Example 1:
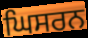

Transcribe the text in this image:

ਘਿਸਰਨ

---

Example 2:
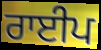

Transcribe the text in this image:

ਰਾਈਪ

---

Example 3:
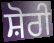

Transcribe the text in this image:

ਸ਼ੋਰੀ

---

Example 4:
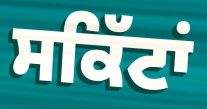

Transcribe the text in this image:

ਸਕਿੱਟਾਂ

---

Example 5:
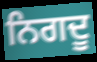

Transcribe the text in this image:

ਨਿਗਦੂ